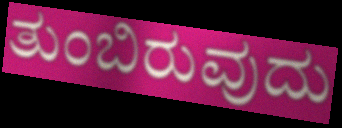
ತುಂಬಿರುವುದು